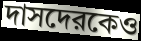
দাসদেরকেও